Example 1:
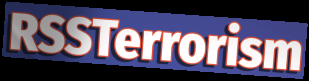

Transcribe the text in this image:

RSSTerrorism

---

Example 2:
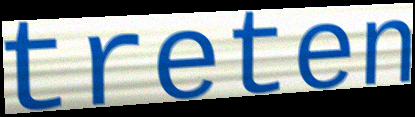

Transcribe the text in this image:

treten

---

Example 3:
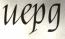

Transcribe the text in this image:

uepg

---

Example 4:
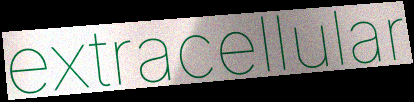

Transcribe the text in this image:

extracellular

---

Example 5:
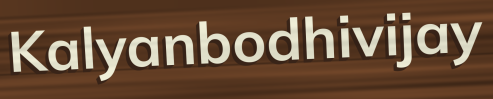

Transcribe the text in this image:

Kalyanbodhivijay